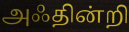
அஃதின்றி